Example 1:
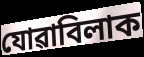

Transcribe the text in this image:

যোৱাবিলাক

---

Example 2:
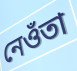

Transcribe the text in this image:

নেওঁতা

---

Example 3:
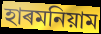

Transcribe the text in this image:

হাৰমনিয়াম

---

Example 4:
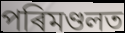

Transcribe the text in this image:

পৰিমণ্ডলত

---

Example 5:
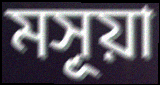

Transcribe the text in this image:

মসূয়া